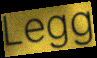
Legg